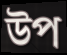
উপ